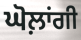
ਘੋਲ਼ਾਂਗੀ